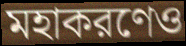
মহাকরণেও